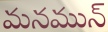
మనమున్